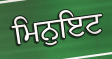
ਮਿਨੁਇਟ